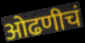
ओढणीचं